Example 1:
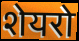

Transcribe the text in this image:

शेयरो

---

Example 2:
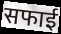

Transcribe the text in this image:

सफाई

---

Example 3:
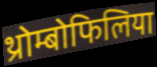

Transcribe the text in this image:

थ्रोम्बोफिलिया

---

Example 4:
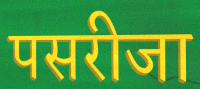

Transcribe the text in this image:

पसरीजा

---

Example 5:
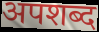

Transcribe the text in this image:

अपशब्द